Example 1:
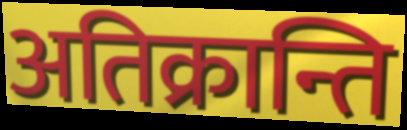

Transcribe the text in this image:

अतिक्रान्ति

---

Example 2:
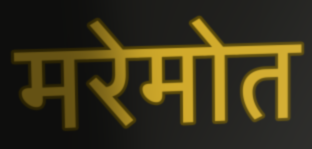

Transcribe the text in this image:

मरेमोत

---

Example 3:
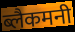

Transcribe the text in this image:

ब्‍लैकमनी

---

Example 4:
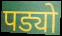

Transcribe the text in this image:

पड्यो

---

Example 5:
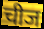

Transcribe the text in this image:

चीज